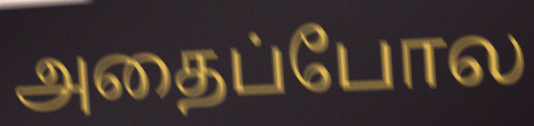
அதைப்போல